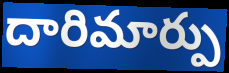
దారిమార్పు